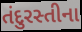
તંદુરસ્તીના